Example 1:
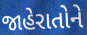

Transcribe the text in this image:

જાહેરાતોને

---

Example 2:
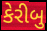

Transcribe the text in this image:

કેરીબુ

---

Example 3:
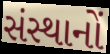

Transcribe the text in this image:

સંસ્થાનોં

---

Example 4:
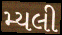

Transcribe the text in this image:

મ્યલી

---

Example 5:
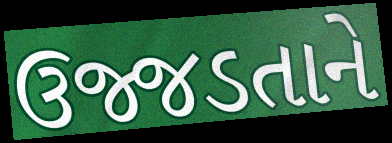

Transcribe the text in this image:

ઉજ્જડતાને